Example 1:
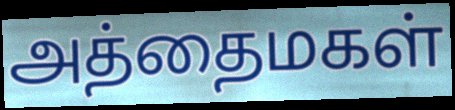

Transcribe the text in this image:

அத்தைமகள்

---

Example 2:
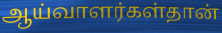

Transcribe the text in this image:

ஆய்வாளர்கள்தான்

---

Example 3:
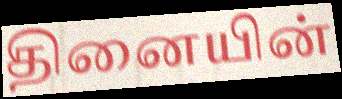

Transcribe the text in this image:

தினையின்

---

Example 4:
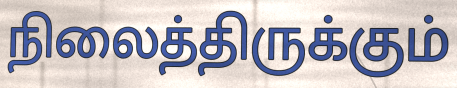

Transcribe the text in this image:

நிலைத்திருக்கும்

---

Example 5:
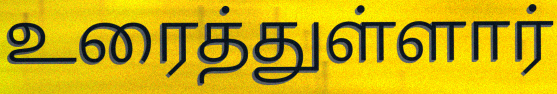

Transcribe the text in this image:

உரைத்துள்ளார்